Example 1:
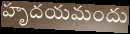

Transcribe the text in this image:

హృదయమందు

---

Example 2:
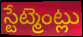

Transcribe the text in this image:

స్టేట్మెంట్లు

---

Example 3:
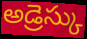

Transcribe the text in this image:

అడ్రెస్కు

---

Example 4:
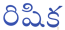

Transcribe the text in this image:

రిషిక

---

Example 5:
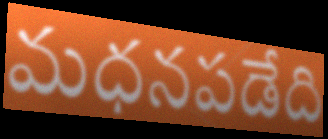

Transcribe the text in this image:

మధనపడేది